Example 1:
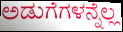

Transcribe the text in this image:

ಅಡುಗೆಗಳನ್ನೆಲ್ಲ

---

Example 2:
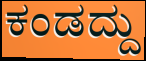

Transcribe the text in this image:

ಕಂಡದ್ದು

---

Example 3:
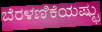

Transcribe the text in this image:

ಬೆರಳಣಿಕೆಯಷ್ಟು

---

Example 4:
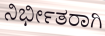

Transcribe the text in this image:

ನಿರ್ಭೀತರಾಗಿ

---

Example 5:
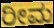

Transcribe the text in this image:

ರೀಮ